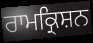
ਰਾਮਕ੍ਰਿਸ਼ਨ